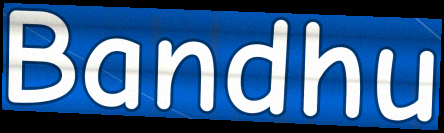
Bandhu